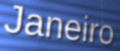
Janeiro